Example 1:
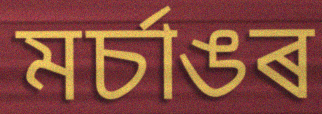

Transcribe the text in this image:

মৰ্চাঙৰ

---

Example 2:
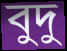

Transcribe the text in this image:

বুদু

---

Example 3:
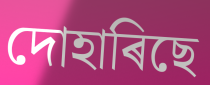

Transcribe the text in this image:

দোহাৰিছে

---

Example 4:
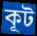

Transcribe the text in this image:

কূট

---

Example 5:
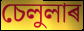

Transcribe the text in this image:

চেলুলাৰ